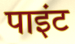
पाइंट